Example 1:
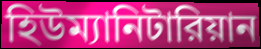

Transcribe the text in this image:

হিউম্যানিটারিয়ান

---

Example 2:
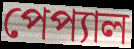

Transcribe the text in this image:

পেপ্যাল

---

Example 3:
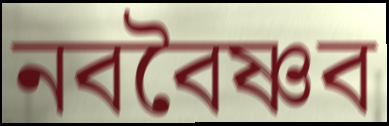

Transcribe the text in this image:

নববৈষ্ণব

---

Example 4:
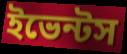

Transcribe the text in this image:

ইভেন্টস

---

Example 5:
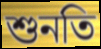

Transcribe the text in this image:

শুনতি